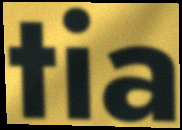
tia